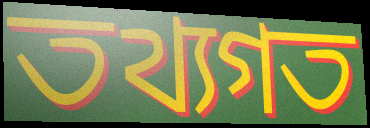
তথ্যগত